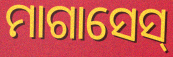
ମାଗାସେସ୍